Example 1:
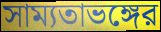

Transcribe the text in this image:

সাম্যতাভঙ্গের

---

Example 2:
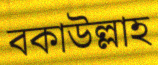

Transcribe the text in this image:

বকাউল্লাহ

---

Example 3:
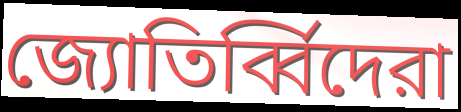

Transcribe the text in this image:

জ্যোতির্ব্বিদেরা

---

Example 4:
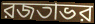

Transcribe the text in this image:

রজতাভর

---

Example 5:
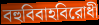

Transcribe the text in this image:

বহুবিবাহবিরোধী